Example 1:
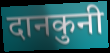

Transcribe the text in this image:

दानकुनी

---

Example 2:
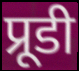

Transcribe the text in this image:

प्रूडी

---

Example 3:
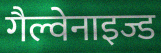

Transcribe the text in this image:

गैल्वेनाइज्ड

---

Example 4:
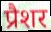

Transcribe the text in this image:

प्रैशर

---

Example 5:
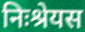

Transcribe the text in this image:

निःश्रेयस